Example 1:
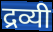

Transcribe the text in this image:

द्रव्यी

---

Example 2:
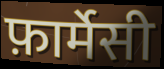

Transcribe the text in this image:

फ़ार्मेसी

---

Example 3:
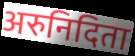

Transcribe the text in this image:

अरुनिदिता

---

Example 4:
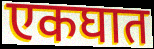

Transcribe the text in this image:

एकघात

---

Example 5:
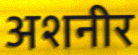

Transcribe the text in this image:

अशनीर